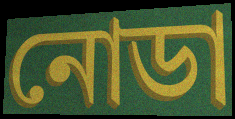
নোডা